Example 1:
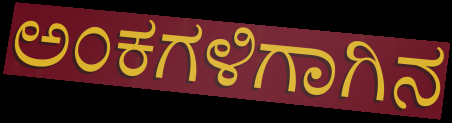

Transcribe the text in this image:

ಅಂಕಗಳಿಗಾಗಿನ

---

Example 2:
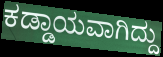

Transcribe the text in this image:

ಕಡ್ಡಾಯವಾಗಿದ್ದು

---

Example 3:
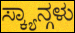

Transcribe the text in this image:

ಸ್ಕ್ಯಾನ್ಗಳು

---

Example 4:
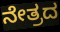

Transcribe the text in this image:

ನೇತ್ರದ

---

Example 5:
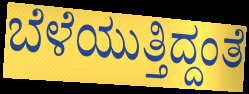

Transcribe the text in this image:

ಬೆಳೆಯುತ್ತಿದ್ದಂತೆ